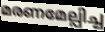
മരണമേല്പിച്ച